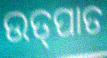
ଉତ୍‌ପାତ